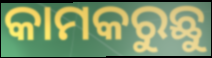
କାମକରୁଛୁ